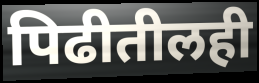
पिढीतीलही